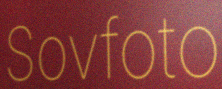
Sovfoto